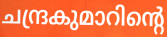
ചന്ദ്രകുമാറിന്റെ